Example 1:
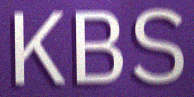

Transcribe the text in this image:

KBS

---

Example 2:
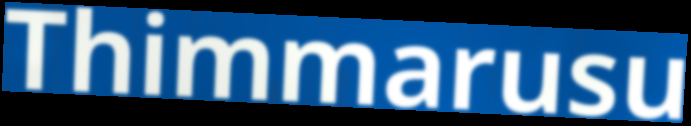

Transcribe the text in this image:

Thimmarusu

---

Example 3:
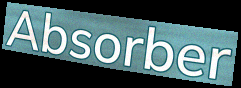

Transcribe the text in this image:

Absorber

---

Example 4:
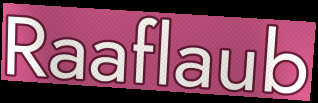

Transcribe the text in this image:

Raaflaub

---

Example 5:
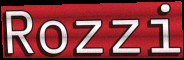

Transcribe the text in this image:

Rozzi